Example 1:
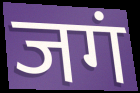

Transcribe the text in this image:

जगं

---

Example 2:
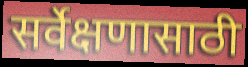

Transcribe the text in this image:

सर्वेक्षणासाठी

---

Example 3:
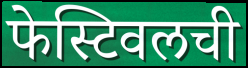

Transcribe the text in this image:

फेस्टिवलची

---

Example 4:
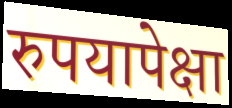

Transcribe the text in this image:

रुपयापेक्षा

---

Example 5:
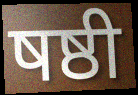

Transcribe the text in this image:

षष्ठी